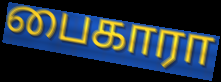
பைகாரா